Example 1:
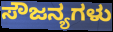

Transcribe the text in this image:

ಸೌಜನ್ಯಗಳು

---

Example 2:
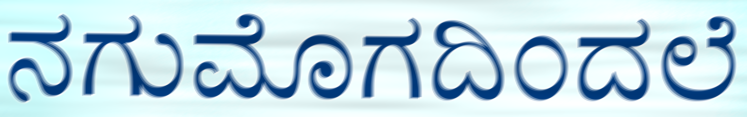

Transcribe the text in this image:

ನಗುಮೊಗದಿಂದಲೆ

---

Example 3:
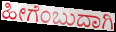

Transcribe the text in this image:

ಹೀಗೆಂಬುದಾಗಿ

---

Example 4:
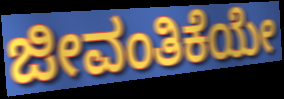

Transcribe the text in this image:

ಜೀವಂತಿಕೆಯೇ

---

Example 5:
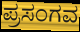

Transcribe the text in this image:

ಪ್ರಸಂಗವ